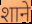
शाने